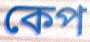
কেপ